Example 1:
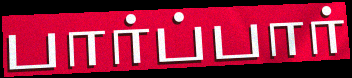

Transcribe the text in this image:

பார்ப்பார்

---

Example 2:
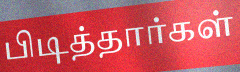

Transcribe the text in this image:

பிடித்தார்கள்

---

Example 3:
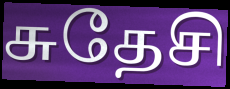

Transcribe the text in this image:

சுதேசி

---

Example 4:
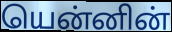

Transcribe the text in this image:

யென்னின்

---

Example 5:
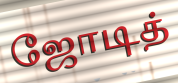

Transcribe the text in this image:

ஜோடித்